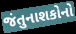
જંતુનાશકોનો